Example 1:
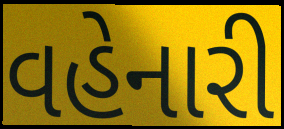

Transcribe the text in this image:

વહેનારી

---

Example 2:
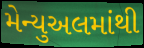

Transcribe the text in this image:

મેન્યુઅલમાંથી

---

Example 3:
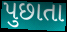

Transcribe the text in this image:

પુછાતા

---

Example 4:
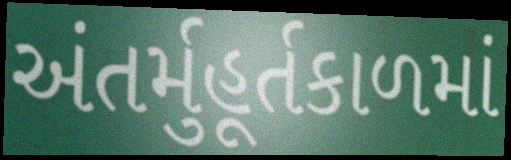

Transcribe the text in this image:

અંતર્મુહૂર્તકાળમાં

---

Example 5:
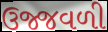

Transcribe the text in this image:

ઉજ્જવળી